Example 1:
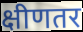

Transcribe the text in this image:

क्षीणतर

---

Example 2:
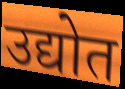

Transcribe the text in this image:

उद्योत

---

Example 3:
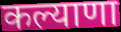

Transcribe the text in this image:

कल्याणा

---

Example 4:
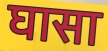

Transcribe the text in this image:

घासा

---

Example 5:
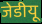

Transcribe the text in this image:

जेडीयू